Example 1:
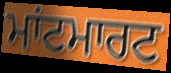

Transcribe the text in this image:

ਮਾਂਟਮਾਰਟ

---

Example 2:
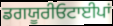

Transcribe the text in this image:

ਡਗਯੂਰੀਓਟਾਈਪਾਂ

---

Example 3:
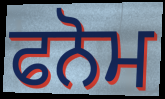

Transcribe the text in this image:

ਫਨੋਮ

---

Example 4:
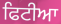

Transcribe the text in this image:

ਫਿਟੀਆ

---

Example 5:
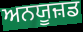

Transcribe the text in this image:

ਅਨਯੂਜ਼ਡ